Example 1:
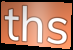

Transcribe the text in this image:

ths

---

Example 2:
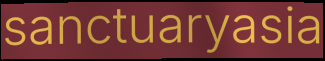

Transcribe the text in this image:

sanctuaryasia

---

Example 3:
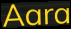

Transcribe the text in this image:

Aara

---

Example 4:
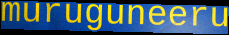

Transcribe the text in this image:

muruguneeru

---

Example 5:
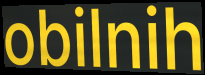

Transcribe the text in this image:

obilnih